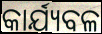
କାର୍ଯ୍ୟବଳ